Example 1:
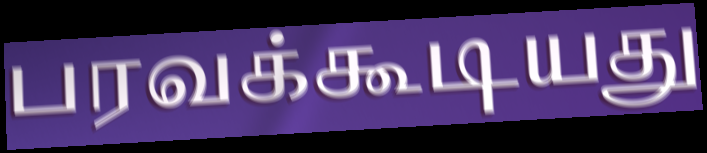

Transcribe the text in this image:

பரவக்கூடியது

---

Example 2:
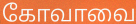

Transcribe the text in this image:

கோவாவை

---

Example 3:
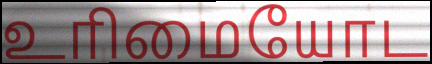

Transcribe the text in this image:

உரிமையோட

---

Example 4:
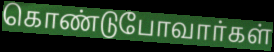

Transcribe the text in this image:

கொண்டுபோவார்கள்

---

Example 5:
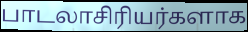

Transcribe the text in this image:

பாடலாசிரியர்களாக